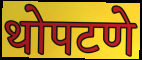
थोपटणे